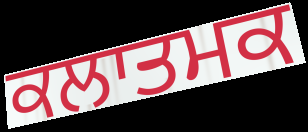
ਕਲਾਤਮਕ